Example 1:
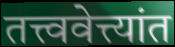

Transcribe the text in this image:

तत्त्ववेत्त्यांत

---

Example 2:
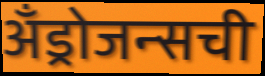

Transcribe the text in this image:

अँड्रोजन्सची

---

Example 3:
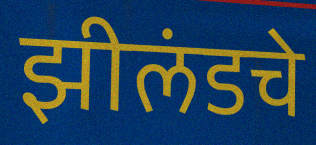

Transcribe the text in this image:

झीलंडचे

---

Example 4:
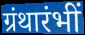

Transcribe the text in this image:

ग्रंथारंभीं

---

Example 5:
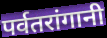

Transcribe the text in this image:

पर्वतरांगानी